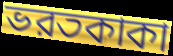
ভরতকাকা